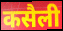
कसैली